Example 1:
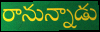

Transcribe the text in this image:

రానున్నాడు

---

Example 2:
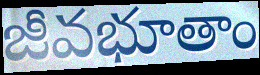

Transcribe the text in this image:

జీవభూతాం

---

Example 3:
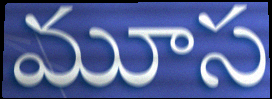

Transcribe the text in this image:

మూస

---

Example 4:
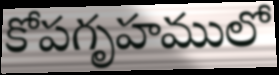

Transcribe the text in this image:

కోపగృహములో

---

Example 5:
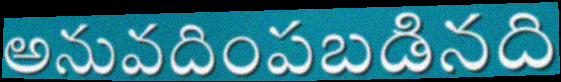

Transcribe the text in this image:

అనువదింపబడినది